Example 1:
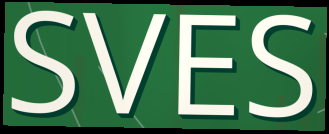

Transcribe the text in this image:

SVES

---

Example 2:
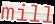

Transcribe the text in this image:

mill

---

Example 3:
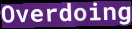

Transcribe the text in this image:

Overdoing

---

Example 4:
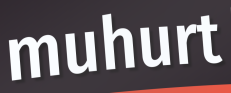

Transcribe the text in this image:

muhurt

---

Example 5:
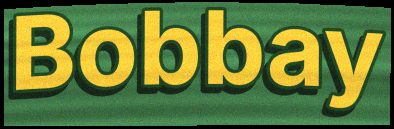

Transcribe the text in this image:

Bobbay